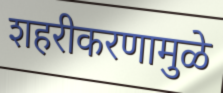
शहरीकरणामुळे